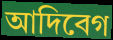
আদিবেগ